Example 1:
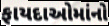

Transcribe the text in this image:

ફાયદાઓમાંનો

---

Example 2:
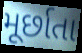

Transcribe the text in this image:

મૂર્છાતા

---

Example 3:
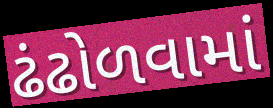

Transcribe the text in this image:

ઢંઢોળવામાં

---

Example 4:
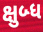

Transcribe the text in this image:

ક્ષુબ્ધ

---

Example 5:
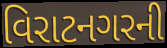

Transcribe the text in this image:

વિરાટનગરની